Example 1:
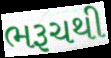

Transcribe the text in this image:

ભરૂચથી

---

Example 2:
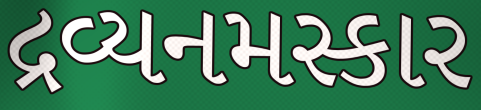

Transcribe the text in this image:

દ્રવ્યનમસ્કાર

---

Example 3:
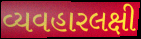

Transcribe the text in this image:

વ્યવહારલક્ષી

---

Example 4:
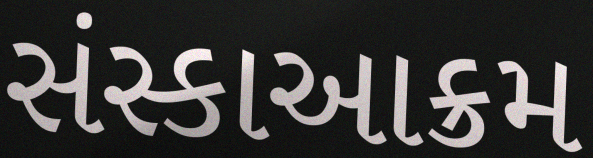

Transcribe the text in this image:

સંસ્કાઆક્રમ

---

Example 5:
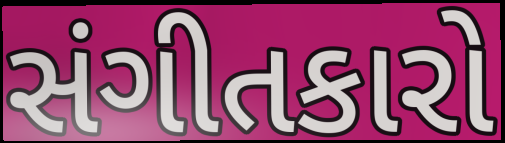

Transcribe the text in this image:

સંગીતકારો